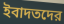
ইবাদতদের